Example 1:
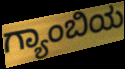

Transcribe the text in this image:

ಗ್ಯಾಂಬಿಯ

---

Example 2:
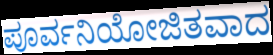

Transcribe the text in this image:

ಪೂರ್ವನಿಯೋಜಿತವಾದ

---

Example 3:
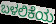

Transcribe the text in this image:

ಬಳಲಿಕೆಯ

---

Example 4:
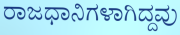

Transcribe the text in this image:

ರಾಜಧಾನಿಗಳಾಗಿದ್ದವು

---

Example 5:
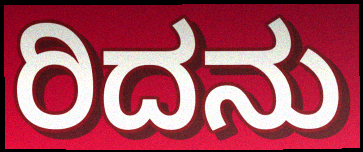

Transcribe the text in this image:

ರಿದನು